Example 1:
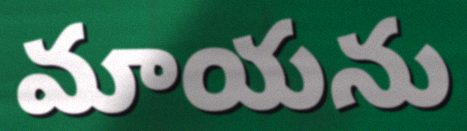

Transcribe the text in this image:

మాయను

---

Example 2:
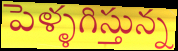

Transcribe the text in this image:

పెళ్ళగిస్తున్న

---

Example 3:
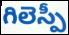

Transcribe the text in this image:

గిలెస్పీ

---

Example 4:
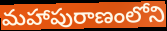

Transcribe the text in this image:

మహాపురాణంలోని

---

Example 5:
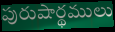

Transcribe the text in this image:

పురుషార్థములు